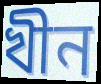
খীন